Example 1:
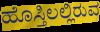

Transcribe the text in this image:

ಹೊಸ್ತಿಲಲ್ಲಿರುವ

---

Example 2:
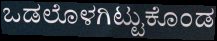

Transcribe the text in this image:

ಒಡಲೊಳಗಿಟ್ಟುಕೊಂಡ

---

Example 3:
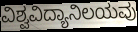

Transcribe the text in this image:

ವಿಶ್ವವಿದ್ಯಾನಿಲಯವು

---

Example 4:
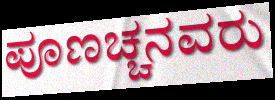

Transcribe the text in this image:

ಪೂಣಚ್ಚನವರು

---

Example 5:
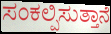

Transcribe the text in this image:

ಸಂಕಲ್ಪಿಸುತ್ತಾನೆ